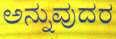
ಅನ್ನುವುದರ